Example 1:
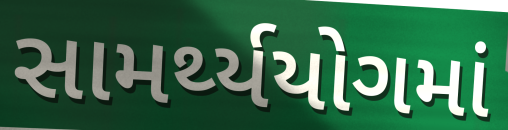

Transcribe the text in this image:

સામર્થ્યયોગમાં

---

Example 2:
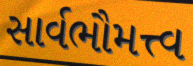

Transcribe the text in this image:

સાર્વભૌમત્ત્વ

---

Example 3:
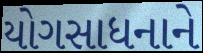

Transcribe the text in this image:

યોગસાધનાને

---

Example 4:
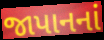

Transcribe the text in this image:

જાપાનનાં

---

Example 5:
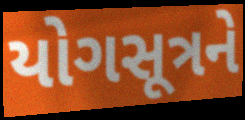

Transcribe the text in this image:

યોગસૂત્રને